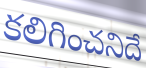
కలిగించనిదే